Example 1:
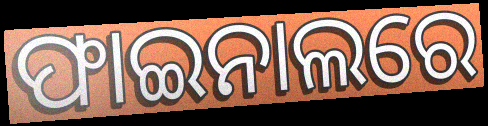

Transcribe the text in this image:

ଫାଇନାଲରେ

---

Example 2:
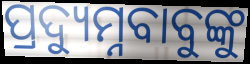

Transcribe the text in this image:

ପ୍ରଦ୍ୟୁମ୍ନବାବୁଙ୍କୁ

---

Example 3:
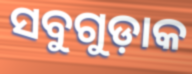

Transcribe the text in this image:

ସବୁଗୁଡ଼ାକ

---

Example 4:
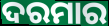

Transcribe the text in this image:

ଦରମାର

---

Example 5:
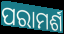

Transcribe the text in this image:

ପରାମର୍ଶ